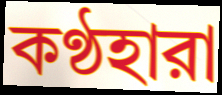
কণ্ঠহারা